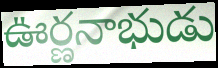
ఊర్ణనాభుడు